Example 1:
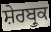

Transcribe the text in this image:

ਸ਼ੇਰਬ੍ਰੁਕ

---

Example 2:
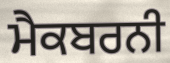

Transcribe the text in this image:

ਮੈਕਬਰਨੀ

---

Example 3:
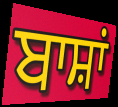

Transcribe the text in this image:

ਬਾਸ਼ਾਂ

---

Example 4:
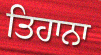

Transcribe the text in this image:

ਤਿਹਾਨਾ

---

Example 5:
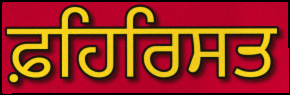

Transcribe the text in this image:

ਫ਼ਹਿਰਿਸਤ